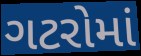
ગટરોમાં